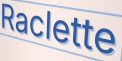
Raclette